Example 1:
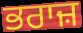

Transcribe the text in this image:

ਭਰਾਜ਼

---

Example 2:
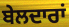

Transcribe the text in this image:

ਬੇਲਦਾਰਾਂ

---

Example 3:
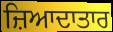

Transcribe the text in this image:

ਜ਼ਿਆਦਾਤਾਰ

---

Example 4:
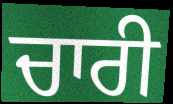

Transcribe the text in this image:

ਚਾਰੀ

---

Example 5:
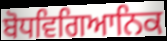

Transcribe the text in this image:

ਬੋਧਵਿਗਿਆਨਿਕ